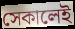
সেকালেই